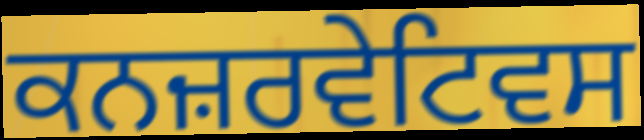
ਕਨਜ਼ਰਵੇਟਿਵਸ